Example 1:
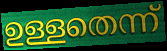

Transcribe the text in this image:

ഉള്ളതെന്ന്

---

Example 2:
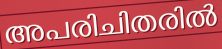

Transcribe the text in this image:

അപരിചിതരിൽ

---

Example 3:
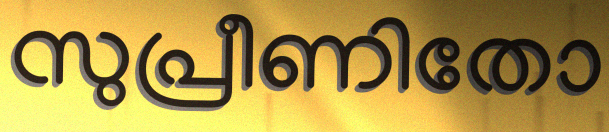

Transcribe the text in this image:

സുപ്രീണിതോ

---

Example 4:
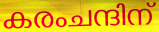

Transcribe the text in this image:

കരംചന്ദിന്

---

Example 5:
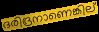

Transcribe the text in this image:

ദരിദ്രനാണെങ്കില്